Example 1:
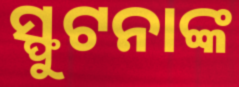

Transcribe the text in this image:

ସ୍ଫୁଟନାଙ୍କ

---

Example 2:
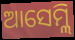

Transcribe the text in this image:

ଆସେମ୍ଲି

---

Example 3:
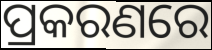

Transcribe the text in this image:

ପ୍ରକରଣରେ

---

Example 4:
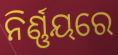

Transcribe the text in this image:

ନିର୍ଣ୍ଣୟରେ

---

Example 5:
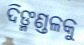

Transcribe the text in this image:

ଦିଙ୍ମଣ୍ଡଳକୁ